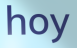
hoy